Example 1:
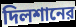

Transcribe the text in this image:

দিলশানের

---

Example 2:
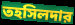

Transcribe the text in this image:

তহসিলদার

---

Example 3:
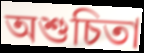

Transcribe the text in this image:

অশুচিতা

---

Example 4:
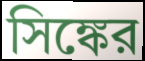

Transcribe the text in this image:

সিঙ্কের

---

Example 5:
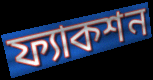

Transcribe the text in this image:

ফ্যাকশন